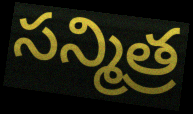
సన్మిత్ర